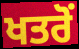
ਖਤਰੋਂ